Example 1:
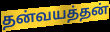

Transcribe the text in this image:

தன்வயத்தன்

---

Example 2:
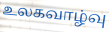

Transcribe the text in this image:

உலகவாழ்வு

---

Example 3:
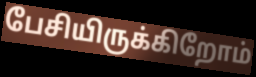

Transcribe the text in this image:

பேசியிருக்கிறோம்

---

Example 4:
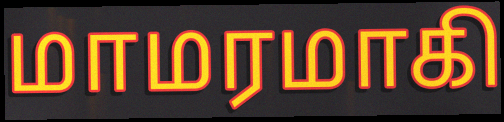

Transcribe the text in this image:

மாமரமாகி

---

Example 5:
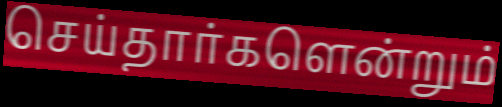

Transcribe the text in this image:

செய்தார்களென்றும்